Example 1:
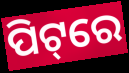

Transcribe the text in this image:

ପିଟ୍‌ରେ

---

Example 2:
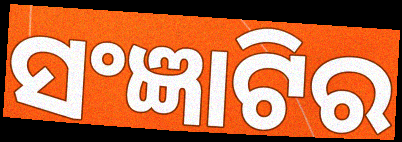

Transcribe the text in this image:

ସଂଜ୍ଞାଟିର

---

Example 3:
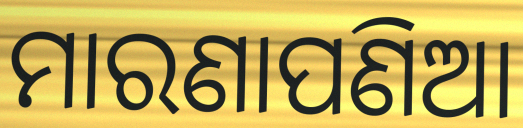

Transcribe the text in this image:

ମାରଣାପଣିଆ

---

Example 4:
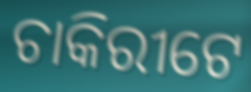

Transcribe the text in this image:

ଚାକିରୀଟେ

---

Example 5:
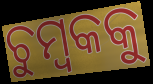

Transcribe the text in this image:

ଚୁମ୍ବକକୁ